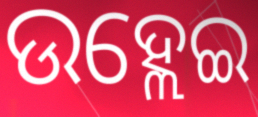
ଉହ୍ଲେଇ